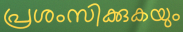
പ്രശംസിക്കുകയും